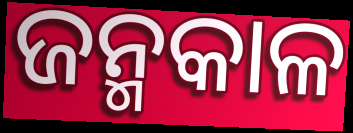
ଜନ୍ମକାଳ